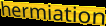
hermiation